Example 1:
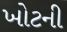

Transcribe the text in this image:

ખોટની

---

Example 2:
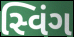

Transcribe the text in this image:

સ્વિંગ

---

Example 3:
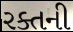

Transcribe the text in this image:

રક્તની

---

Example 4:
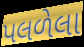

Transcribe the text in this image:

પલળેલા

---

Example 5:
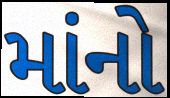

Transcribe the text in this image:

માંનો